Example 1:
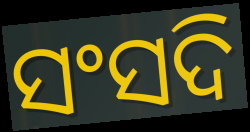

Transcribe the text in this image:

ସଂସଦି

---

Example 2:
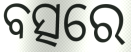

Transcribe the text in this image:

ବତ୍ସରେ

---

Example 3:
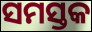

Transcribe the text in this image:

ସମସ୍ତକ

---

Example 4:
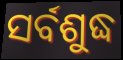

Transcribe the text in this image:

ସର୍ବଶୁଦ୍ଧ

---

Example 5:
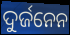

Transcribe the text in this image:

ଦୁର୍ଜନେନ